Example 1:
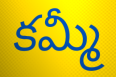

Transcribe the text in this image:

కమ్మీ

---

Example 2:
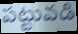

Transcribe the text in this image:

పట్టువడి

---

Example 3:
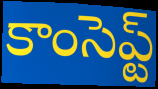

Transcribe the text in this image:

కాంసెప్ట్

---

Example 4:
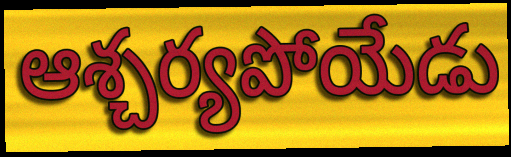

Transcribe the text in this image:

ఆశ్చర్యపోయేడు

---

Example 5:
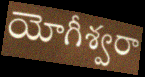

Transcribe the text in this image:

యోగీశ్వరా